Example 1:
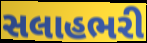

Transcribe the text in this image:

સલાહભરી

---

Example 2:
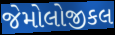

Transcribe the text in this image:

જેમોલોજીકલ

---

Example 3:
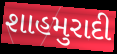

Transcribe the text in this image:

શાહમુરાદી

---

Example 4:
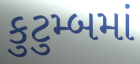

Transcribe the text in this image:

કુટુમ્બમાં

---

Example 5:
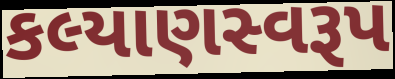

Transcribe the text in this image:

કલ્યાણસ્વરૂપ